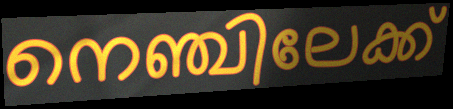
നെഞ്ചിലേക്ക്